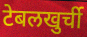
टेबलखुर्ची